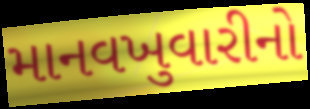
માનવખુવારીનો